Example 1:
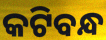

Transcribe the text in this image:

କଟିବନ୍ଧ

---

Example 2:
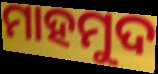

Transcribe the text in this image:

ମାହମୁଦ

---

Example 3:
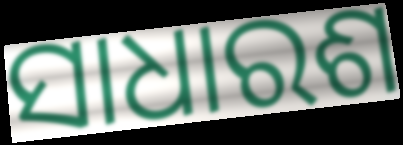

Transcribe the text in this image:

ସାଧାରଶ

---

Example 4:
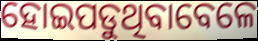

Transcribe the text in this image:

ହୋଇପଡୁଥିବାବେଳେ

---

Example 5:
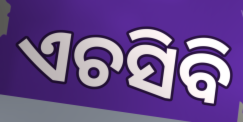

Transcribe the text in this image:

ଏଚସିବି